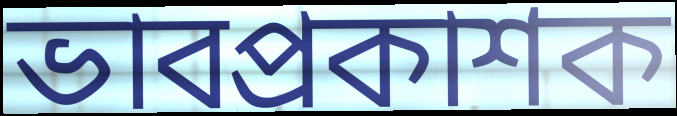
ভাবপ্রকাশক